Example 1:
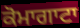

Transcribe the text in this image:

ਕੋਮਾਗਾਟਾ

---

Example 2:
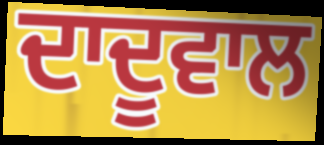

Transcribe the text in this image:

ਦਾਦੂਵਾਲ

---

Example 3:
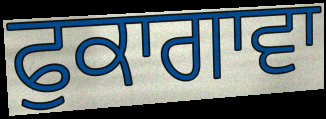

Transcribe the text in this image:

ਫੁਕਾਗਾਵਾ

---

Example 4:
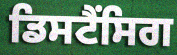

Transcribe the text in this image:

ਡਿਸਟੈਂਸਿਗ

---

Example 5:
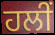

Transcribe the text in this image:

ਹਲੀਂ